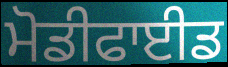
ਮੋਡੀਫਾਈਡ